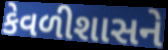
કેવળીશાસને